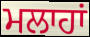
ਮਲਾਹਾਂ